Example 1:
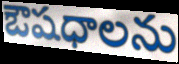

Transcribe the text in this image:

ఔషధాలను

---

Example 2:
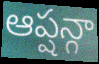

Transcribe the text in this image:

ఆప్షన్గా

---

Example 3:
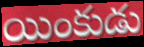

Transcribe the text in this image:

యింకుడు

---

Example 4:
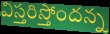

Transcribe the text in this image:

విస్తరిస్తోందన్న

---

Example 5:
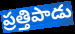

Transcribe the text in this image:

ప్రత్తిపాడు